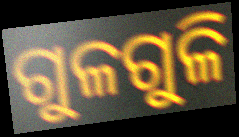
ଗୁଳଗୁଳି